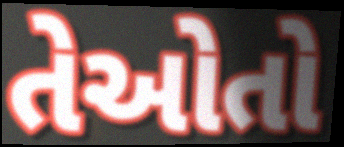
તેઓતો